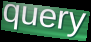
query